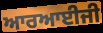
ਆਰਆਈਜੀ